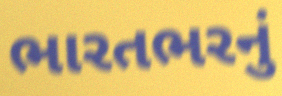
ભારતભરનું